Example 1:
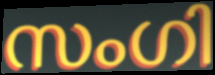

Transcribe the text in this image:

സംഗി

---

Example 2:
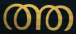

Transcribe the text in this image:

ത്ത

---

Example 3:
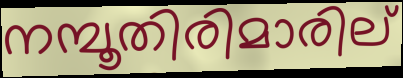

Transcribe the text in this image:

നമ്പൂതിരിമാരില്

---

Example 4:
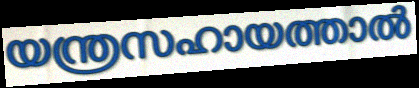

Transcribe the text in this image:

യന്ത്രസഹായത്താൽ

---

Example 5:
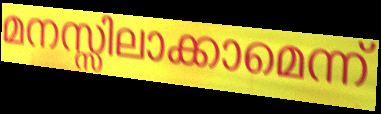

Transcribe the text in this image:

മനസ്സിലാക്കാമെന്ന്